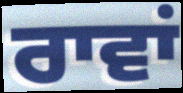
ਰਾਵਾਂ